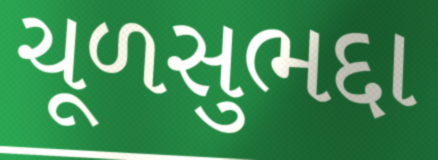
ચૂળસુભદ્દા